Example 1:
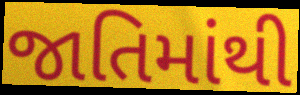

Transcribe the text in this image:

જાતિમાંથી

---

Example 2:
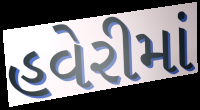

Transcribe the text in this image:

હવેરીમાં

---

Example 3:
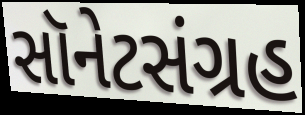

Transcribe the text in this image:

સૉનેટસંગ્રહ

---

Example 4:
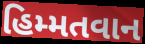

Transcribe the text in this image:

હિમ્મતવાન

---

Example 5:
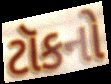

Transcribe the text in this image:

ટૉકનો